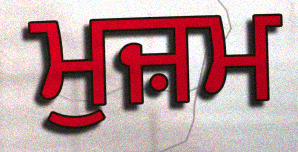
ਮੁਜ਼ਮ